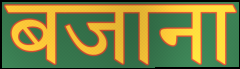
बजाना